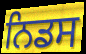
ਨਿਡਸ